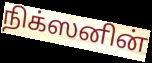
நிக்ஸனின்